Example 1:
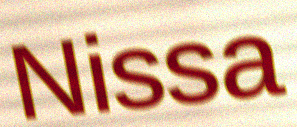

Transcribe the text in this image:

Nissa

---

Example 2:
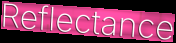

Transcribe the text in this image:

Reflectance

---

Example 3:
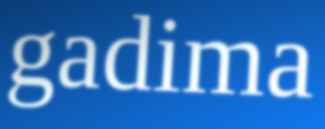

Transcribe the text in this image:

gadima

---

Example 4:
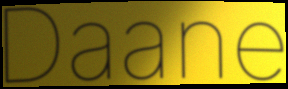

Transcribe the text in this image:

Daane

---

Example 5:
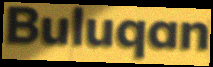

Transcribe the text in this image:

Buluqan